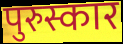
पुरुस्‍कार